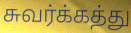
சுவர்க்கத்து